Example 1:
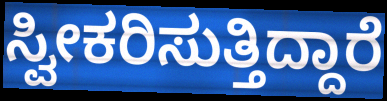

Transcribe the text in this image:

ಸ್ವೀಕರಿಸುತ್ತಿದ್ದಾರೆ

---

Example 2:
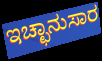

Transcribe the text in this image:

ಇಚ್ಛಾನುಸಾರ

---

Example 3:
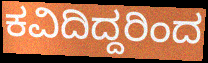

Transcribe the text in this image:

ಕವಿದಿದ್ದರಿಂದ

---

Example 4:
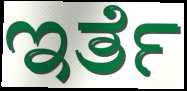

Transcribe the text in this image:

ಇರ್ತೆ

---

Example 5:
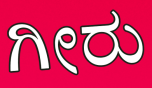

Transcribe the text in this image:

ಗೀರು